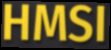
HMSI